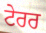
ਟੇਰਰ